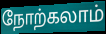
நோற்கலாம்